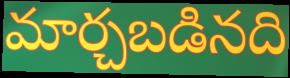
మార్చబడినది